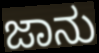
ಜಾನು